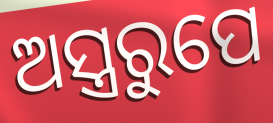
ଅସ୍ତ୍ରରୁପେ